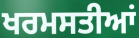
ਖਰਮਸਤੀਆਂ